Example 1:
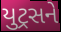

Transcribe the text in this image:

યુટ્રસને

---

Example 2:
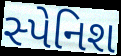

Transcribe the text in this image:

સ્પેનિશ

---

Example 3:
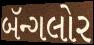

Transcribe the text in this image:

બૅન્ગલોર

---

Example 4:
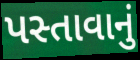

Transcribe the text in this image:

પસ્તાવાનું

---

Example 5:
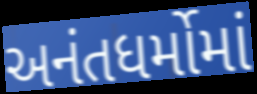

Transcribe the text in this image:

અનંતધર્મોમાં